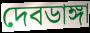
দেবডাঙ্গা